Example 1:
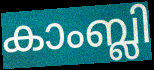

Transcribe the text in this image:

കാംബ്ലി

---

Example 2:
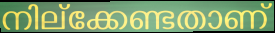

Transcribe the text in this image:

നില്ക്കേണ്ടതാണ്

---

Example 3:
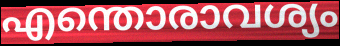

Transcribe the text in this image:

എന്തൊരാവശ്യം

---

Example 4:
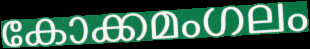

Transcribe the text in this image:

കോക്കമംഗലം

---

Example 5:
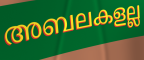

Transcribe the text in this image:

അബലകളല്ല